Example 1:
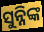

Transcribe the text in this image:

ସୁନ୍ନିଙ୍କ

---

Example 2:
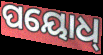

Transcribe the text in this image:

ପୟୋଧ୍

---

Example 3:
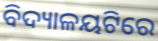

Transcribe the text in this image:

ବିଦ୍ୟାଳୟଟିରେ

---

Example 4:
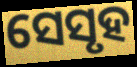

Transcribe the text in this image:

ସେସୃହ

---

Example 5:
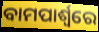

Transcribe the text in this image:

ବାମପାର୍ଶ୍ଵରେ